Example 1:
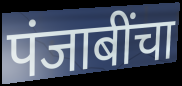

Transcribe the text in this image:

पंजाबींचा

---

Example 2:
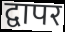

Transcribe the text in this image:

द्वापर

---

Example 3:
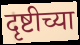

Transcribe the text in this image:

दृष्टीच्या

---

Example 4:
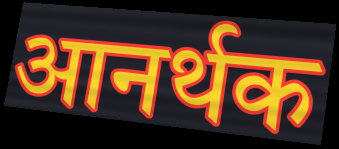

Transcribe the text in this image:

आनर्थक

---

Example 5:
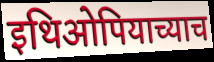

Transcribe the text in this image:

इथिओपियाच्याच